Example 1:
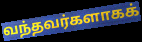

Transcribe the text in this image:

வந்தவர்களாகக்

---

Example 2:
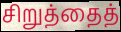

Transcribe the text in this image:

சிறுத்தைத்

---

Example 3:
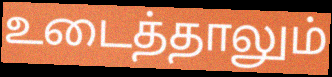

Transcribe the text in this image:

உடைத்தாலும்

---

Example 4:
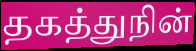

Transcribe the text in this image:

தகத்துநின்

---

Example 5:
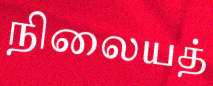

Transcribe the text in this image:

நிலையத்